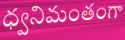
ధ్వనిమంతంగా